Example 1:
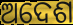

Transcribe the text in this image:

ଅଦେଶ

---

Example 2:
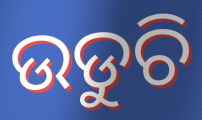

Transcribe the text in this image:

ଉଡୁଚି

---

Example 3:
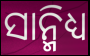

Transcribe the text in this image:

ସାନ୍ମିଧ୍ୟ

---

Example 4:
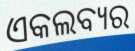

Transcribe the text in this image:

ଏକଲବ୍ୟର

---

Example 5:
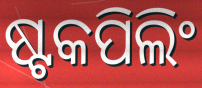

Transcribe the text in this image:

ଷ୍ଟକପିଲିଂ